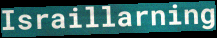
Israillarning